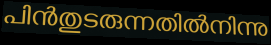
പിൻതുടരുന്നതിൽനിന്നു